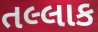
તલ્લાક